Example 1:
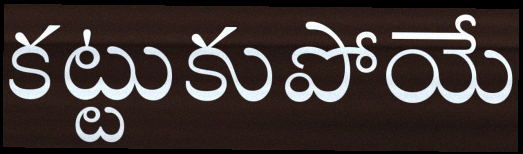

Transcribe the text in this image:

కట్టుకుపోయే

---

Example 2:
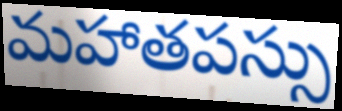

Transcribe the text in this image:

మహాతపస్సు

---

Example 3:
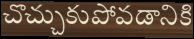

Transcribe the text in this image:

చొచ్చుకుపోవడానికి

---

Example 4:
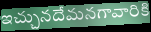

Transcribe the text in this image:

ఇచ్చునదేమనగావారికి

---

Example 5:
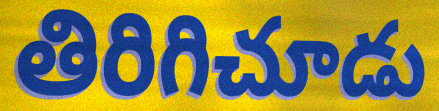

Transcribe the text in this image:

తిరిగిచూడు